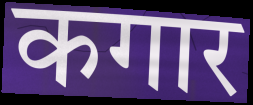
कगार